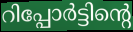
റിപ്പോർട്ടിന്റെ